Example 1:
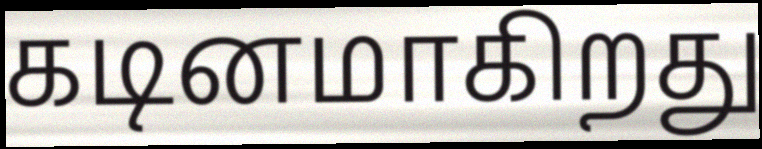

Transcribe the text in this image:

கடினமாகிறது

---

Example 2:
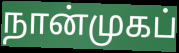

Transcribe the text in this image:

நான்முகப்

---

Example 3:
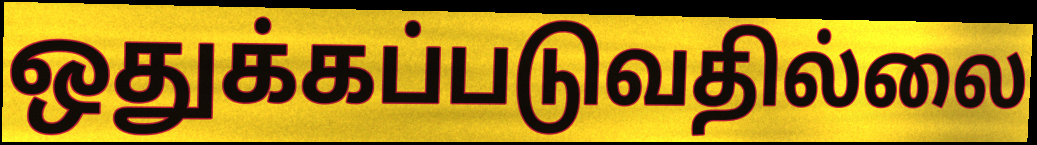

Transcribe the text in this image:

ஒதுக்கப்படுவதில்லை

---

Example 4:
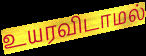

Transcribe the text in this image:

உயரவிடாமல்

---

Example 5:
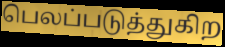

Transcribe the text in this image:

பெலப்படுத்துகிற